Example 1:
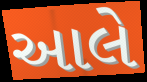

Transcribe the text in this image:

આલે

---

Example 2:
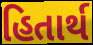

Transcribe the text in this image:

હિતાર્થ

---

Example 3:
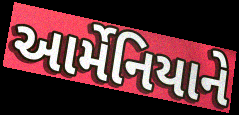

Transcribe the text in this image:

આર્મેનિયાને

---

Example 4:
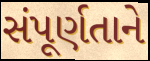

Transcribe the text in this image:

સંપૂર્ણતાને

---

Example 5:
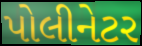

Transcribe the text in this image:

પોલીનેટર